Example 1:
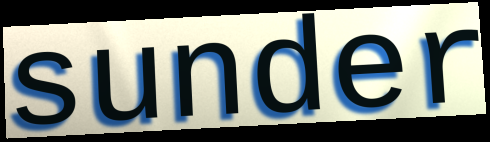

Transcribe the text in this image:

sunder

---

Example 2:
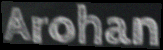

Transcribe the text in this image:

Arohan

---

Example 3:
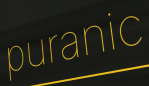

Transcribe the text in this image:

puranic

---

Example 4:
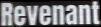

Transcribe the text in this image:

Revenant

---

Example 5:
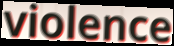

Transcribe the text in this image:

violence